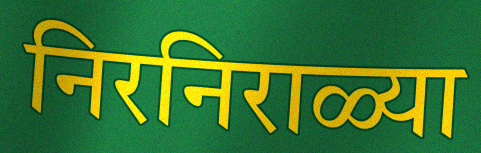
निरनिराळ्या